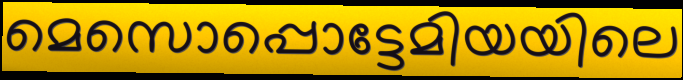
മെസൊപ്പൊട്ടേമിയയിലെ